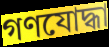
গণযোদ্ধা